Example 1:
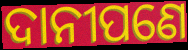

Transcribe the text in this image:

ଦାନୀପଣେ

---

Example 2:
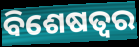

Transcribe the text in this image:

ବିଶେଷତ୍ବର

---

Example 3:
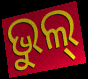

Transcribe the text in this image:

ଭୁଲ୍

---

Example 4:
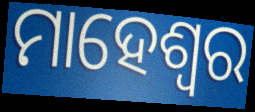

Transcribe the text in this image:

ମାହେଶ୍ଵର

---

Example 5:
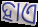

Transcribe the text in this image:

ହାଏ